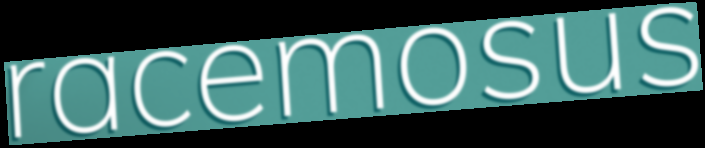
racemosus